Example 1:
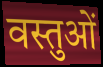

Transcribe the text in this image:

वस्‍तुओं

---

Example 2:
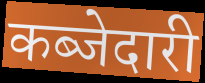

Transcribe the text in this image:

कब्जेदारी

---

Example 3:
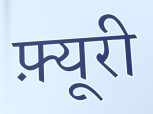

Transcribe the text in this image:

फ़्यूरी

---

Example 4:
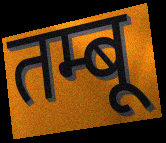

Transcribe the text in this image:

तम्‍बू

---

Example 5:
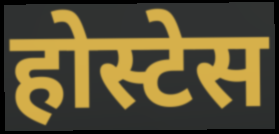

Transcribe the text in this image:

होस्टेस